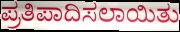
ಪ್ರತಿಪಾದಿಸಲಾಯಿತು